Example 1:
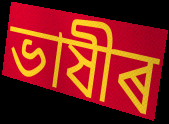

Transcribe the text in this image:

ভাষীৰ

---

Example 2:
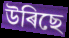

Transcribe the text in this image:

উৰিছে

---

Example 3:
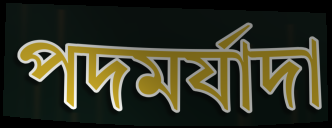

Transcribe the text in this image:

পদমৰ্যাদা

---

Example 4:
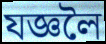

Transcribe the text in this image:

যজ্ঞলৈ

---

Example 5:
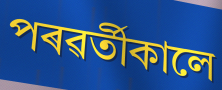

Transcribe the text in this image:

পৰৱৰ্তীকালে